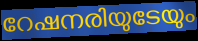
റേഷനരിയുടേയും